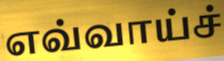
எவ்வாய்ச்